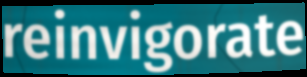
reinvigorate